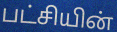
பட்சியின்